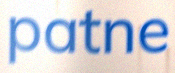
patne